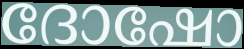
ദോഷോ